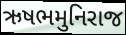
ઋષભમુનિરાજ